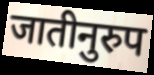
जातीनुरुप